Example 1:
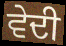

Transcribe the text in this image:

ਵੇਦੀ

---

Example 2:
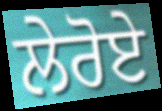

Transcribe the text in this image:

ਲੇਰੋਏ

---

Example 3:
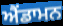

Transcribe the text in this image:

ਐਂਡਾਮਨ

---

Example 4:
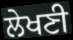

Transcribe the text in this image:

ਲੇਖਣੀ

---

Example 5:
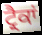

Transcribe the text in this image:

ਟ੍ਰੈਕਾਂ